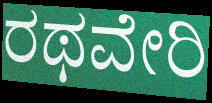
ರಥವೇರಿ